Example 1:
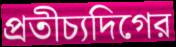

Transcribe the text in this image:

প্রতীচ্যদিগের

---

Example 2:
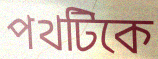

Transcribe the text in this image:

পথটিকে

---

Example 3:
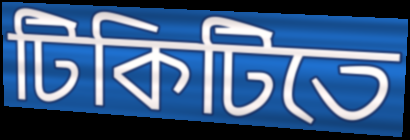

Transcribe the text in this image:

টিকিটিতে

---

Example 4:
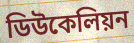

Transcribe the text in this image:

ডিউকেলিয়ন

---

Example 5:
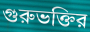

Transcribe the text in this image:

গুরুভক্তির